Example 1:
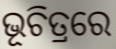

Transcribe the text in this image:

ଭୂଚିତ୍ରରେ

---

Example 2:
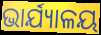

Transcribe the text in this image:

ଭାର୍ଯ୍ୟାଳୟ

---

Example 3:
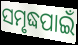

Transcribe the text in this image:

ସମୃଦ୍ଧପାଇଁ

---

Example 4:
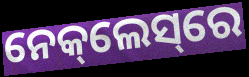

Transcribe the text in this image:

ନେକ୍‌ଲେସ୍‌ରେ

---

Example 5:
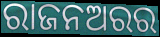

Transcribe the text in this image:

ରାଜନଅରର